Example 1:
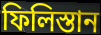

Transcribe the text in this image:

ফিলিস্তান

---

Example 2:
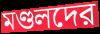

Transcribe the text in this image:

মণ্ডলদের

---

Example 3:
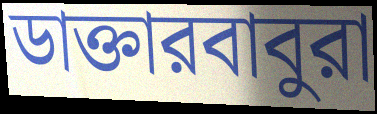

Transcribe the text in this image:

ডাক্তারবাবুরা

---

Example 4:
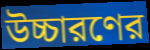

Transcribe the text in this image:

উচ্চারণের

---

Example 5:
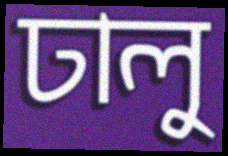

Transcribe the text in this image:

ঢালু